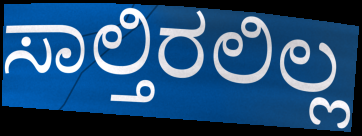
ಸಾಲ್ತಿರಲಿಲ್ಲ